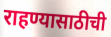
राहण्यासाठीची